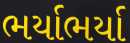
ભર્યાભર્યા